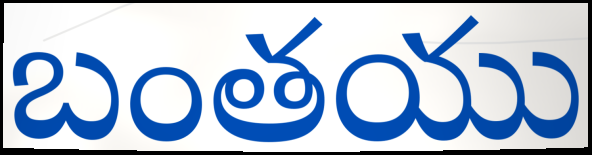
బంతయు